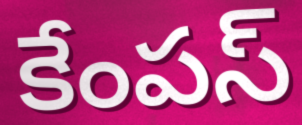
కేంపస్